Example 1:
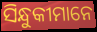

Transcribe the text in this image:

ସିନ୍ଧୁକୀମାନେ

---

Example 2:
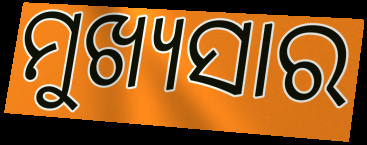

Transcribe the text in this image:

ମୁଖ୍ୟସାର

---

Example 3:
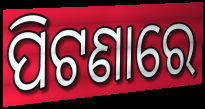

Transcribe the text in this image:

ପିଟଣାରେ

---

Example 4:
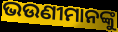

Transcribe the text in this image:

ଭଉଣୀମାନଙ୍କୁ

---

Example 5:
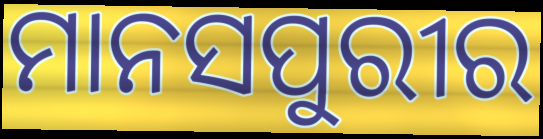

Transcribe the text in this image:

ମାନସପୁରୀର